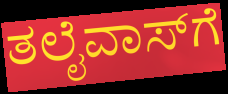
ತಲೈವಾಸ್‌ಗೆ